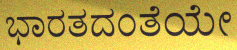
ಭಾರತದಂತೆಯೇ